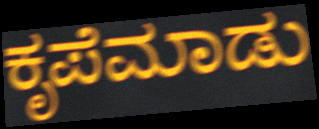
ಕೃಪೆಮಾಡು